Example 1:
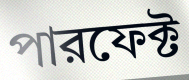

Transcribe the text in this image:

পারফেক্ট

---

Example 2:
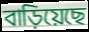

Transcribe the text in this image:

বাড়িয়েছে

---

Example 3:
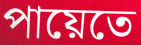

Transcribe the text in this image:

পায়েতে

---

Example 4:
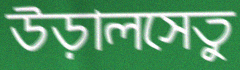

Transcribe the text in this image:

উড়ালসেতু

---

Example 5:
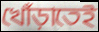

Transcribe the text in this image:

খোঁড়াতেই